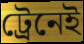
ট্রেনেই